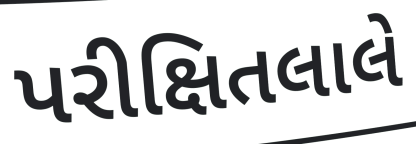
પરીક્ષિતલાલે